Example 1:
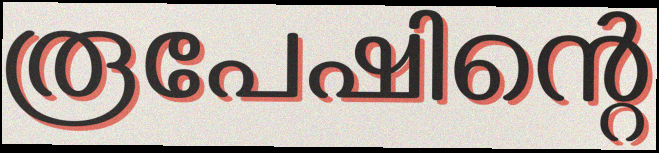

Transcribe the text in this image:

രൂപേഷിന്റെ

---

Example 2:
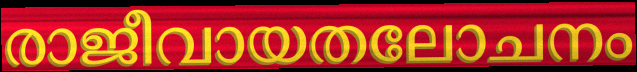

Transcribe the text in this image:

രാജീവായതലോചനം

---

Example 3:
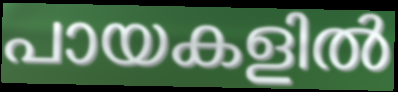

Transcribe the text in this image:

പായകളിൽ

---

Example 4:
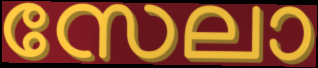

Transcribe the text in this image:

സേലാ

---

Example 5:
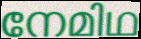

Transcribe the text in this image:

നേമിഥ